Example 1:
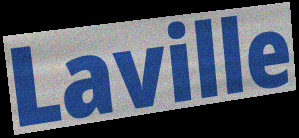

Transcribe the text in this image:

Laville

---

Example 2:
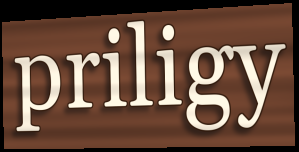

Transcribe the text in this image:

priligy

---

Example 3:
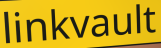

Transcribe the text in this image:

linkvault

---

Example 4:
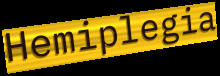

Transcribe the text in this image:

Hemiplegia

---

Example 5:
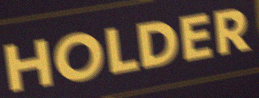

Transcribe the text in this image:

HOLDER